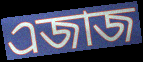
এজাজ